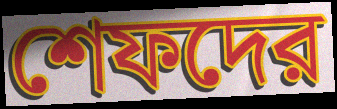
শেফদের